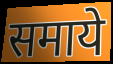
समाये